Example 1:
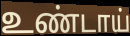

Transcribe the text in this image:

உண்டாய்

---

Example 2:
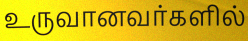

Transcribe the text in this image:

உருவானவர்களில்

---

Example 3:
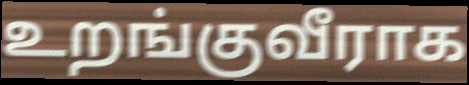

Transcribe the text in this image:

உறங்குவீராக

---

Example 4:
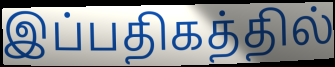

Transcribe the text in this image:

இப்பதிகத்தில்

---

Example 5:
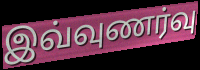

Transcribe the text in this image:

இவ்வுணர்வு